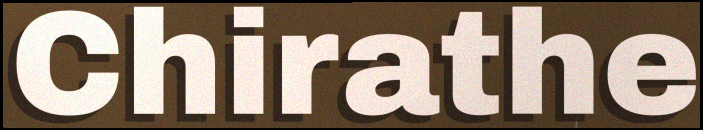
Chirathe